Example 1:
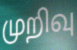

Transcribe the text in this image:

முறிவு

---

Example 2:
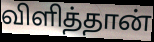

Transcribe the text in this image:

விளித்தான்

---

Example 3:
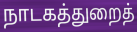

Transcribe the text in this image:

நாடகத்துறைத்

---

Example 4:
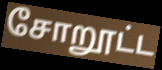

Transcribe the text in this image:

சோறூட்ட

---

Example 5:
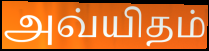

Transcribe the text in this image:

அவ்யிதம்